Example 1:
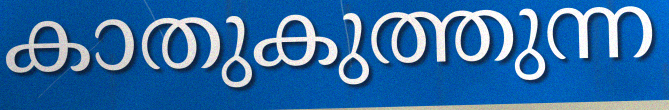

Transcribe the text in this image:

കാതുകുത്തുന്ന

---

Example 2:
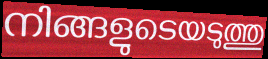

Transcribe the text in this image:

നിങ്ങളുടെയടുത്തു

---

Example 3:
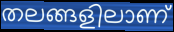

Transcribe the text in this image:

തലങ്ങളിലാണ്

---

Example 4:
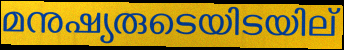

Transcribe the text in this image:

മനുഷ്യരുടെയിടയില്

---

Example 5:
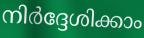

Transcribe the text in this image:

നിർദ്ദേശിക്കാം